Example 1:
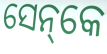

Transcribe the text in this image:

ସେନ୍‌କେ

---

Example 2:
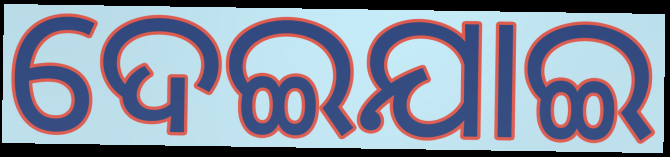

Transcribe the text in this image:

ଦେଇଯାଇ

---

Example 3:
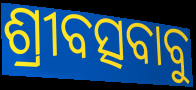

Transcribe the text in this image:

ଶ୍ରୀବତ୍ସବାବୁ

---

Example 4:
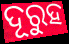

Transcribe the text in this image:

ଦୂରୁହ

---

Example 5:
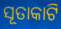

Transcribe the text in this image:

ସୂତାକାଟି